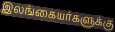
இலங்கையர்களுக்கு